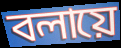
বলায়ে